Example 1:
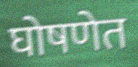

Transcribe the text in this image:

घोषणेत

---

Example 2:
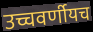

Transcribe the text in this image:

उच्चवर्णीयच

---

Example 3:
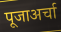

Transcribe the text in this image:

पूजाअर्चा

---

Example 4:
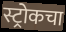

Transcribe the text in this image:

स्ट्रोकचा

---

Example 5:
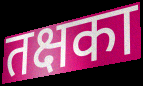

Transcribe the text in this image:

तक्षका